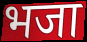
भजा